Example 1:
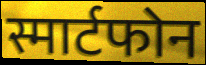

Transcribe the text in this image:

स्मार्टफोन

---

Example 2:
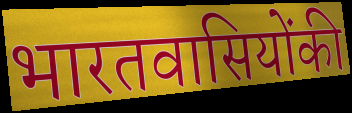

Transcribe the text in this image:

भारतवासियोंकी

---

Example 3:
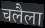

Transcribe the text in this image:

चलैला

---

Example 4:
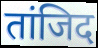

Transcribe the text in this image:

तांजिद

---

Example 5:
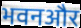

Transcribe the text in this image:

भवनऔर